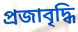
প্রজাবৃদ্ধি